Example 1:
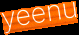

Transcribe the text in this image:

yeenu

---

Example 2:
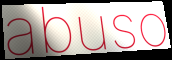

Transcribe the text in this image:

abuso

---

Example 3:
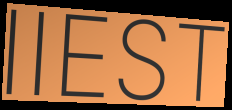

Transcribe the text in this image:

IIEST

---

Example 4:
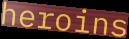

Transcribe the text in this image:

heroins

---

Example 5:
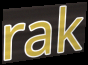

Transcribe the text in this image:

rak